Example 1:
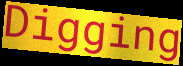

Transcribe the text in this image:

Digging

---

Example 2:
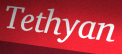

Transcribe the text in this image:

Tethyan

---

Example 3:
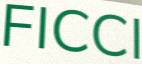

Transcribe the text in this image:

FICCI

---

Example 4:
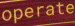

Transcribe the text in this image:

operate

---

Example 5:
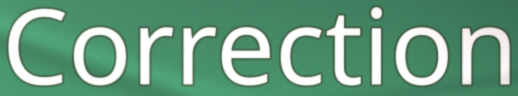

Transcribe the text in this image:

Correction